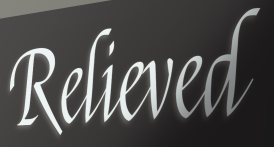
Relieved